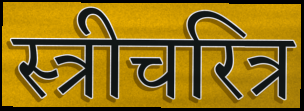
स्त्रीचरित्र